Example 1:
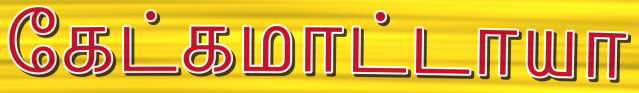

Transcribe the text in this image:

கேட்கமாட்டாயா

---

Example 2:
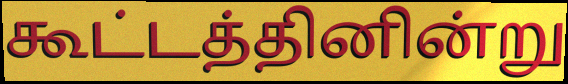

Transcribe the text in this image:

கூட்டத்தினின்று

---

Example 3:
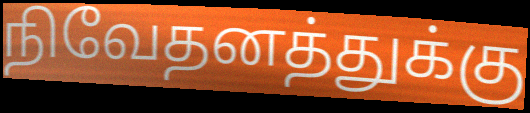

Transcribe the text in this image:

நிவேதனத்துக்கு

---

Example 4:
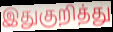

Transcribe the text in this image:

இதுகுறித்து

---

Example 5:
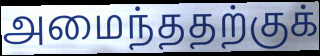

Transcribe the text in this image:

அமைந்ததற்குக்